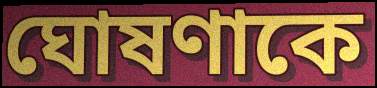
ঘোষণাকে